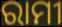
ରାମୀ